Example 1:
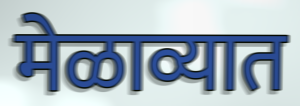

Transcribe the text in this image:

मेळाव्यात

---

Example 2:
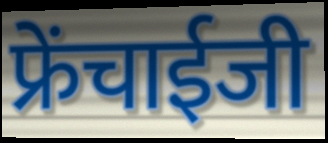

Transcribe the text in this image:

फ्रेंचाईजी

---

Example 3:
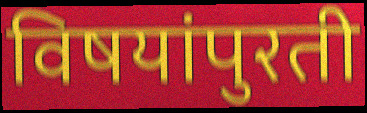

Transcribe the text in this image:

विषयांपुरती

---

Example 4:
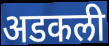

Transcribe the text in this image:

अडकली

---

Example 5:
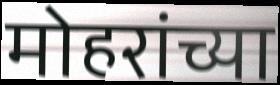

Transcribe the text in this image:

मोहरांच्या